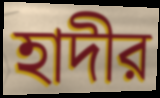
হাদীর